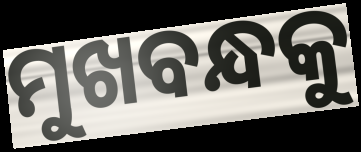
ମୁଖବନ୍ଧକୁ